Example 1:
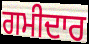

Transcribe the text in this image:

ਗਮੀਦਾਰ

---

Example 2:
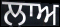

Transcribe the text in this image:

ਲਾਅ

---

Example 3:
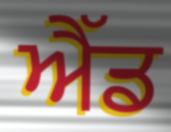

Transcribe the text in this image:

ਐੱਡ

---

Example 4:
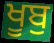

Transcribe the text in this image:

ਖੂਬੁ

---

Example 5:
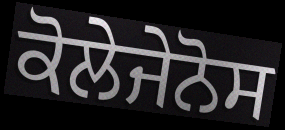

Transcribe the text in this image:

ਕੋਲੇਜੇਨੋਸ